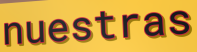
nuestras